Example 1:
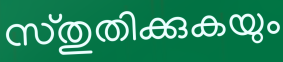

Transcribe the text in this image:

സ്തുതിക്കുകയും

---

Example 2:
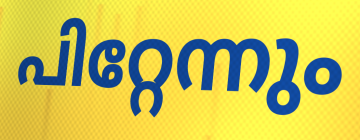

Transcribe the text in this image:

പിറ്റേന്നും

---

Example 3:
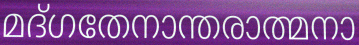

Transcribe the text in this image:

മദ്ഗതേനാന്തരാത്മനാ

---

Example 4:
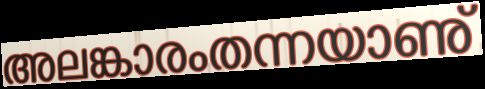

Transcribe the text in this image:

അലങ്കാരംതന്നയാണു്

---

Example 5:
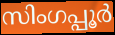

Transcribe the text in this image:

സിംഗപ്പൂർ